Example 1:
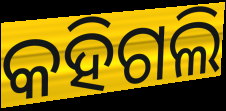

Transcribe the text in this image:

କହିଗଲି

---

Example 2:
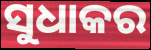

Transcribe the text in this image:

ସୁଧାକର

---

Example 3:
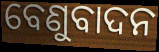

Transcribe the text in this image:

ବେଣୁବାଦନ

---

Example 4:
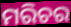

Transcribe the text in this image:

ମରିଚର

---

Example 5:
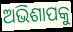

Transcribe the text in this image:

ଅଭିଶାପକୁ